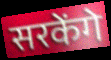
सरकेंगे